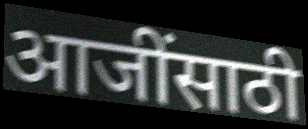
आजींसाठी